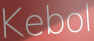
Kebol